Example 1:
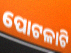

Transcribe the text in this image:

ପୋଟଳାଟି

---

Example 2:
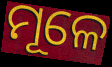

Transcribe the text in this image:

ମୂଳେ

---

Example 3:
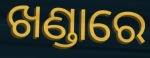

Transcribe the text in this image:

ଖଣ୍ଡାରେ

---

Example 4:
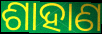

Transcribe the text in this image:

ଶାହାଣ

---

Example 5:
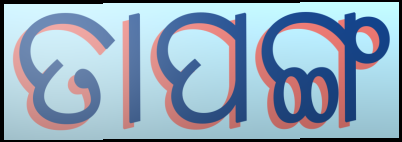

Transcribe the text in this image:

ତାପଙ୍ଗ